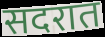
सदरात